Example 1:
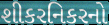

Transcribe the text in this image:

શીકરનિકરનો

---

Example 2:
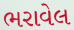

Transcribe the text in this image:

ભરાવેલ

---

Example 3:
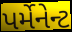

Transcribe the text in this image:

પર્મેનેન્ટ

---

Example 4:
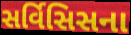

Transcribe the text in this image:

સર્વિસિસના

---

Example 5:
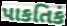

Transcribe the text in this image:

પાકતિકં